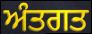
ਅੰਤਗਤ